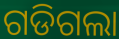
ଗଡିଗଲା